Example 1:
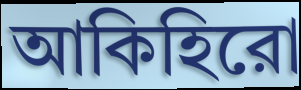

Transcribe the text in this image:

আকিহিরো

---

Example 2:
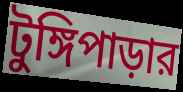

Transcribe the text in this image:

টুঙ্গিপাড়ার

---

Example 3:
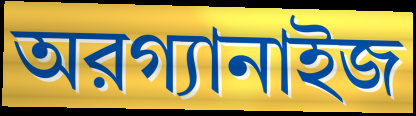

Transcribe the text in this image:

অরগ্যানাইজ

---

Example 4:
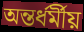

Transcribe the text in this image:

অন্তর্ধর্মীয়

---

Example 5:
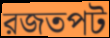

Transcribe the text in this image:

রজতপট